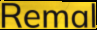
Remal